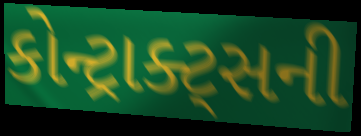
કોન્ટ્રાક્ટ્સની